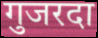
गुजरदा